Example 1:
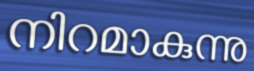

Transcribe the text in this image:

നിറമാകുന്നു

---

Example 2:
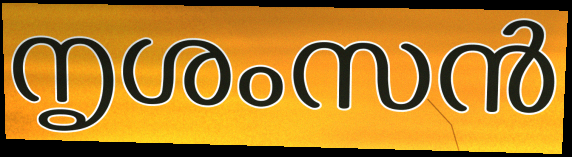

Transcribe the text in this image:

നൃശംസൻ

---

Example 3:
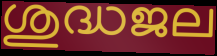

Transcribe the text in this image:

ശുദ്ധജല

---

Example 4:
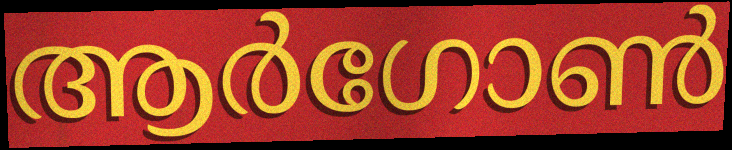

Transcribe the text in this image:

ആർഗോൺ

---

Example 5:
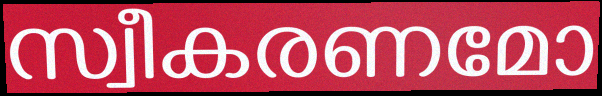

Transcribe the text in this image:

സ്വീകരണമോ